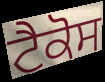
ਟੈਕੋਸ